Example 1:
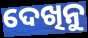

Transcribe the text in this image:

ଦେଖିନୁ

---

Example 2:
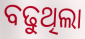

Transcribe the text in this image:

ବଢୁଥିଲା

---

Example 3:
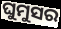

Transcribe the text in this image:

ଘୁମୁସର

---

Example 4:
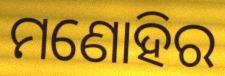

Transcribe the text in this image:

ମଣୋହିର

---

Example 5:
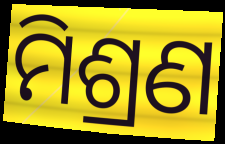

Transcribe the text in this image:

ମିଶ୍ରଣ